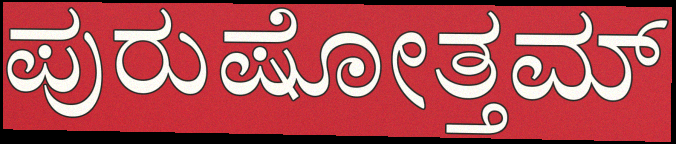
ಪುರುಷೋತ್ತಮ್